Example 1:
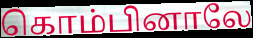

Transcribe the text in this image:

கொம்பினாலே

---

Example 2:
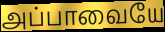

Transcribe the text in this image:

அப்பாவையே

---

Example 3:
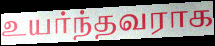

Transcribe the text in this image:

உயர்ந்தவராக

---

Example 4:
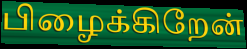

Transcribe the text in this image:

பிழைக்கிறேன்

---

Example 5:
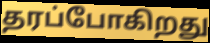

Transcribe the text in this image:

தரப்போகிறது